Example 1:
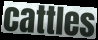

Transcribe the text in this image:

cattles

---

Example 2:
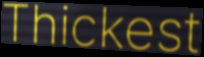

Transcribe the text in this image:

Thickest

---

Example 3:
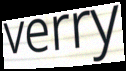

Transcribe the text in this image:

verry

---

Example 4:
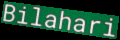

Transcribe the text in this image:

Bilahari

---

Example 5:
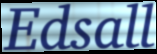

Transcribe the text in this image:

Edsall